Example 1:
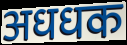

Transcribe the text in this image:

अधधक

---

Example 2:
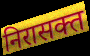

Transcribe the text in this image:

निरासक्त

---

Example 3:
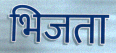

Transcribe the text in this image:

भिजता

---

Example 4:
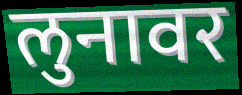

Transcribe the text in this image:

लुनावर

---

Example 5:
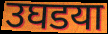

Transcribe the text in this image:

उघडया